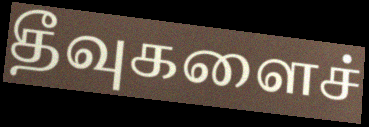
தீவுகளைச்